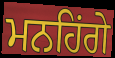
ਮਨਹਿਂਗੇ